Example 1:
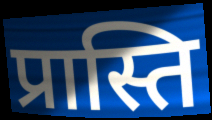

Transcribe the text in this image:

प्रास्ति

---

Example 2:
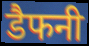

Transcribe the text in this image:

डैफनी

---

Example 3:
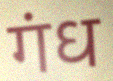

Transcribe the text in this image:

गंध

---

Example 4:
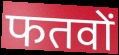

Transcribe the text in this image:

फतवों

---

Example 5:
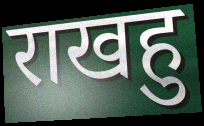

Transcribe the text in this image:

राखहु